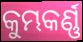
କୁମ୍ଭକର୍ଣ୍ଣ